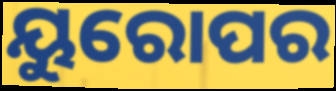
ୟୁରୋପର